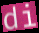
di